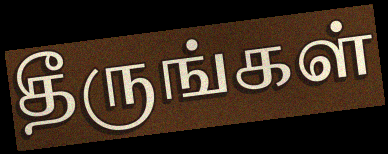
தீருங்கள்